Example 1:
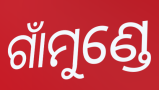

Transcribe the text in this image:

ଗାଁମୁଣ୍ଡେ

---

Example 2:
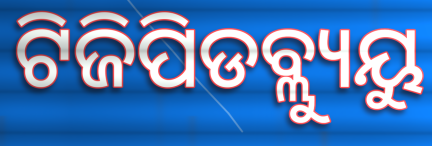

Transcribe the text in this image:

ଟିଜିପିଡବ୍ଲ୍ୟୁୟୁ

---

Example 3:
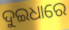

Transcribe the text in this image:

ଦୁଇଧାରେ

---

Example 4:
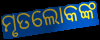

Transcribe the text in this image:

ମୃତଲୋକଙ୍କ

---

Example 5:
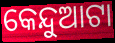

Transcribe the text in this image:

କେନ୍ଦୁଆଟା